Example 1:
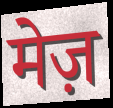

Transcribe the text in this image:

मेज़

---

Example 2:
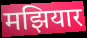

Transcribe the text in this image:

मझियार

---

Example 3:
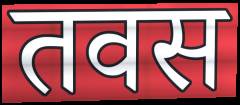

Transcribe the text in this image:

तवस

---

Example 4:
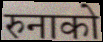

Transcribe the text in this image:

रुनाको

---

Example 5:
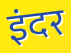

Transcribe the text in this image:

इंदर